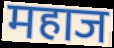
महाज